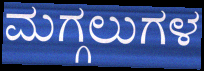
ಮಗ್ಗಲುಗಳ